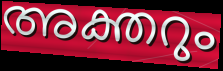
അക്തറും